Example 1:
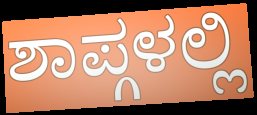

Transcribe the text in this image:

ಶಾಪ್ಗಳಲ್ಲಿ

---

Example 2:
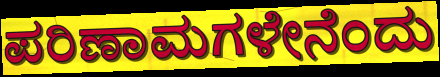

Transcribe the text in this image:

ಪರಿಣಾಮಗಳೇನೆಂದು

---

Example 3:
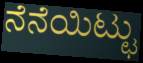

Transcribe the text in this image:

ನೆನೆಯಿಟ್ಟು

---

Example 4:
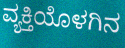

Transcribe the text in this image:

ವ್ಯಕ್ತಿಯೊಳಗಿನ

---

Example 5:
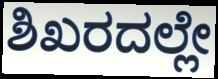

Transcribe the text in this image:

ಶಿಖರದಲ್ಲೇ